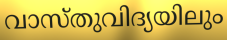
വാസ്തുവിദ്യയിലും